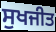
ਸੁਖਜੀਤ